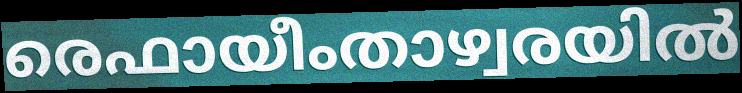
രെഫായീംതാഴ്വരയിൽ